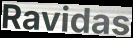
Ravidas